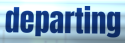
departing